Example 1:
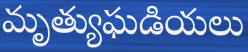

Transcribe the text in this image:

మృత్యుఘడియలు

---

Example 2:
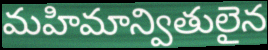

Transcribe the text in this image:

మహిమాన్వితులైన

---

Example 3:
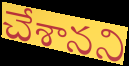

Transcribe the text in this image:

చేశానని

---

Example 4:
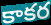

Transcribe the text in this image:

కాకర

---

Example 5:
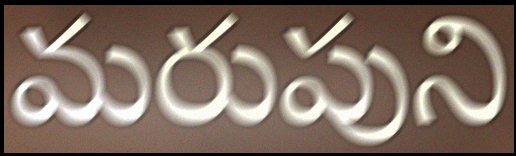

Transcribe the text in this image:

మరుపుని